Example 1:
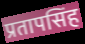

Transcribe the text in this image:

प्रतापसिंह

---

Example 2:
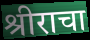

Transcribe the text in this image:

श्रीराचा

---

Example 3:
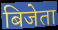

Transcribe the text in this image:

बिजेता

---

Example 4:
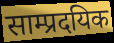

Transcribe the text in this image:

साम्प्रदयिक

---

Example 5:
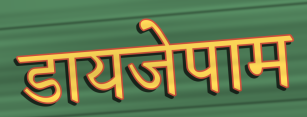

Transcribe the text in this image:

डायजेपाम